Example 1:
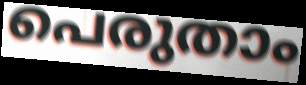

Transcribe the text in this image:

പെരുതാം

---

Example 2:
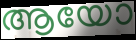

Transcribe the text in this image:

ആയോ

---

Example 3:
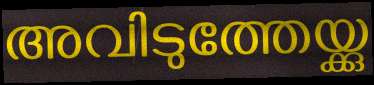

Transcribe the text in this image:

അവിടുത്തേയ്ക്കു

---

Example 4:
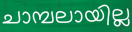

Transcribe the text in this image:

ചാമ്പലായില്ല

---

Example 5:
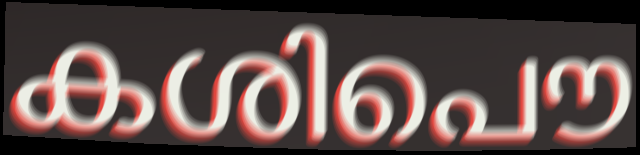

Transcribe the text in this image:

കശിപൌ